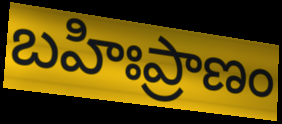
బహిఃప్రాణం